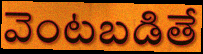
వెంటబడితే